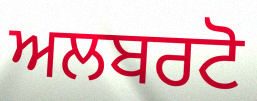
ਅਲਬਰਟੋ